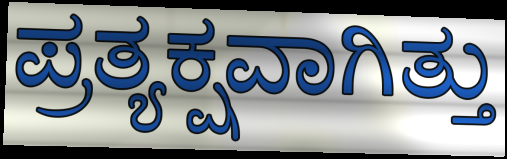
ಪ್ರತ್ಯಕ್ಷವಾಗಿತ್ತು